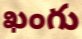
ఖంగు